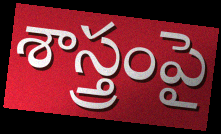
శాస్త్రంపై